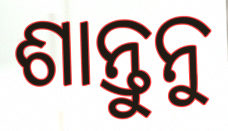
ଶାନ୍ତୁନୁ